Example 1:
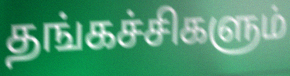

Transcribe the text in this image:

தங்கச்சிகளும்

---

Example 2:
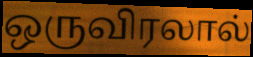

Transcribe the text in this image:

ஒருவிரலால்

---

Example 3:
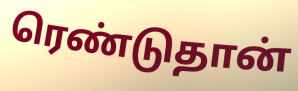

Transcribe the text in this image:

ரெண்டுதான்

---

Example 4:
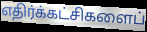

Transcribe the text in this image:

எதிர்க்கட்சிகளைப்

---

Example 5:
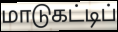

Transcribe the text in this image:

மாடுகட்டிப்